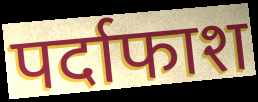
पर्दाफाश